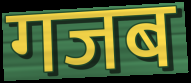
गजब